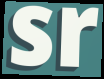
sr